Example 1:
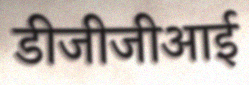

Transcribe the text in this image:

डीजीजीआई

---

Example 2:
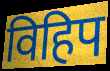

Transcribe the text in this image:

विहिप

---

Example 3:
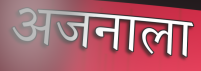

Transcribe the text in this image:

अजनाला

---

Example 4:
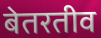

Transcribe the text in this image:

बेतरतीव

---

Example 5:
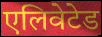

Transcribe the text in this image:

एलिवेटेड